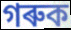
গৰুক